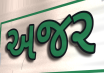
અજર